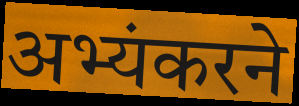
अभ्यंकरने